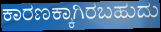
ಕಾರಣಕ್ಕಾಗಿರಬಹುದು